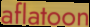
aflatoon